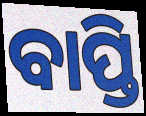
ବାପ୍ତି